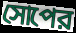
সোপের